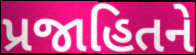
પ્રજાહિતને